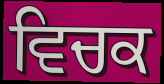
ਵਿਚਕ